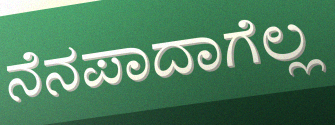
ನೆನಪಾದಾಗೆಲ್ಲ